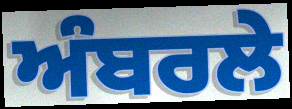
ਅੰਬਰਲੇ